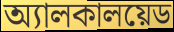
অ্যালকালয়েড